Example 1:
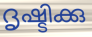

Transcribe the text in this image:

ദൃഷ്ടിക്കു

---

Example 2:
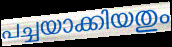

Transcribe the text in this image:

പച്ചയാക്കിയതും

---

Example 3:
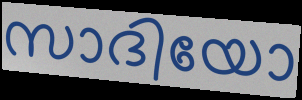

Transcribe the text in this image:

സാദിയോ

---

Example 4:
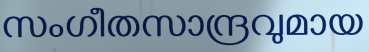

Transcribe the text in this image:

സംഗീതസാന്ദ്രവുമായ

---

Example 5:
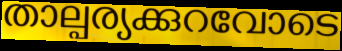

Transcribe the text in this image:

താല്പര്യക്കുറവോടെ